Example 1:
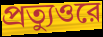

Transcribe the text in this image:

প্রত্যুওরে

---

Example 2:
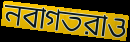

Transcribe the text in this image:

নবাগতরাও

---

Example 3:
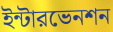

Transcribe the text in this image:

ইন্টারভেনশন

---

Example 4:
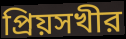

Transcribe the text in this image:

প্রিয়সখীর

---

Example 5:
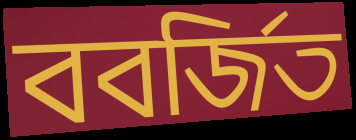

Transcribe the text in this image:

ববর্জিত